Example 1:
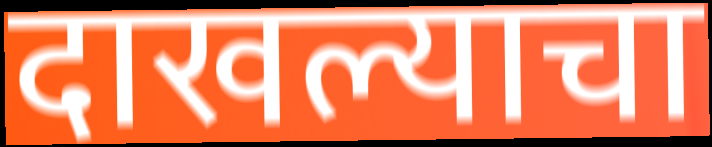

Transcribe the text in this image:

दाखल्याचा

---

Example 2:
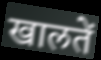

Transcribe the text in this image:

खालतें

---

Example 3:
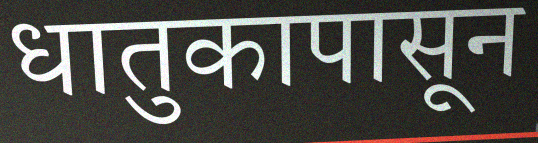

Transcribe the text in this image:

धातुकापासून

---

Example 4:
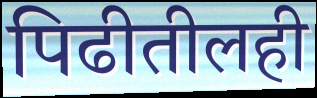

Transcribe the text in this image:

पिढीतीलही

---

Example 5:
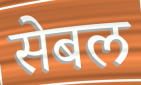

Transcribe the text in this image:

सेबल